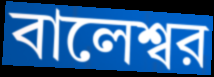
বালেশ্বর